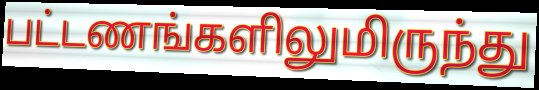
பட்டணங்களிலுமிருந்து